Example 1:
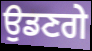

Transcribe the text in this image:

ਉਡਣਗੇ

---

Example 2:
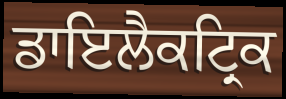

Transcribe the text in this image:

ਡਾਇਲੈਕਟ੍ਰਿਕ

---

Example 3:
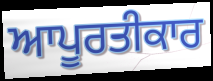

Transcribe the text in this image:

ਆਪੂਰਤੀਕਾਰ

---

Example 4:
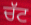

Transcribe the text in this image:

ਚੱਟ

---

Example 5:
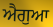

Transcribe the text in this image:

ਐਗੁਆ